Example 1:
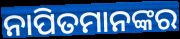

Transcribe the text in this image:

ନାପିତମାନଙ୍କର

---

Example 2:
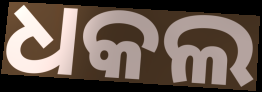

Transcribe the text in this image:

ଧକଲ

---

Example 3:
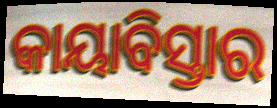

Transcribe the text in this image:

କାୟାବିସ୍ତାର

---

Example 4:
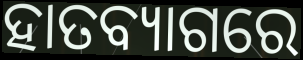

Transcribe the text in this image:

ହାତବ୍ୟାଗରେ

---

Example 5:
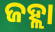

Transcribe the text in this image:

ଜହ୍ଲା